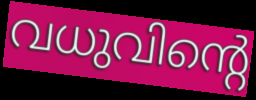
വധുവിന്റെ